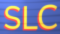
SLC